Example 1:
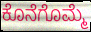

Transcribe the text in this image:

ಕೊನೆಗೊಮ್ಮೆ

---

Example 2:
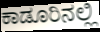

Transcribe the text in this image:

ಕಾಡೂರಿನಲ್ಲಿ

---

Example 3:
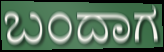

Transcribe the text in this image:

ಬಂದಾಗ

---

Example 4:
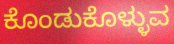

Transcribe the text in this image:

ಕೊಂಡುಕೊಳ್ಳುವ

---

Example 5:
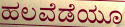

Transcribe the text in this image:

ಹಲವೆಡೆಯೂ